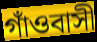
গাঁওবাসী